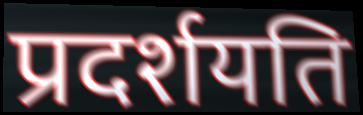
प्रदर्शयति